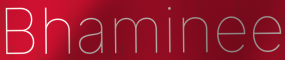
Bhaminee